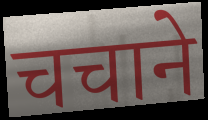
चचाने